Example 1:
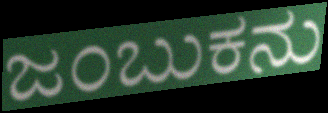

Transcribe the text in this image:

ಜಂಬುಕನು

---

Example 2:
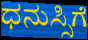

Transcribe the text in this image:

ಧನುಸ್ಸಿಗೆ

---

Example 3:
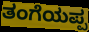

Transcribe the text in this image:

ತಂಗೆಯಪ್ಪ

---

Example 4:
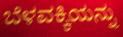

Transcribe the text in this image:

ಬೆಳವಕ್ಕಿಯನ್ನು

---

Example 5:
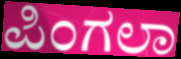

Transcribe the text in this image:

ಪಿಂಗಲಾ